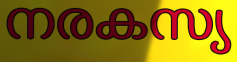
നരകസ്യ